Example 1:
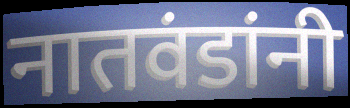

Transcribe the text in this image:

नातवंडांनी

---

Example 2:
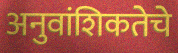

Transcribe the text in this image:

अनुवांशिकतेचे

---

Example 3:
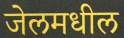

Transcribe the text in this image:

जेलमधील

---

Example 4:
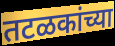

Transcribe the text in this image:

तटळकांच्या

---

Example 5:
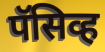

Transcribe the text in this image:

पॅसिव्ह